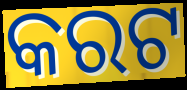
କରଟ